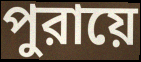
পুরায়ে